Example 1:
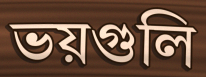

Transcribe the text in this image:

ভয়গুলি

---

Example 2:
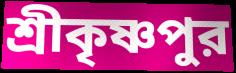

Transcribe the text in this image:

শ্রীকৃষ্ণপুর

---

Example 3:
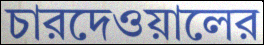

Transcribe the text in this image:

চারদেওয়ালের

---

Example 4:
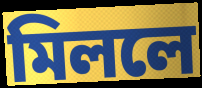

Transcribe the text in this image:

মিললে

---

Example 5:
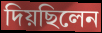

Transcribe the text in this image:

দিয়ছিলেন